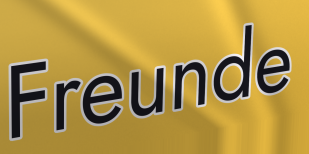
Freunde